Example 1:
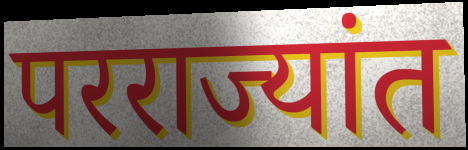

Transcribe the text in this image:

परराज्यांत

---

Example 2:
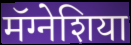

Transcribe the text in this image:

मॅग्‍नेशिया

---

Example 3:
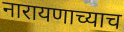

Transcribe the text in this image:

नारायणाच्याच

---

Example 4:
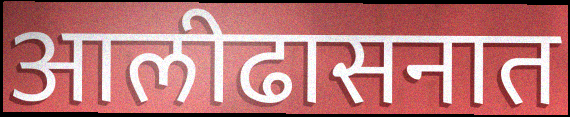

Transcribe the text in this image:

आलीढासनात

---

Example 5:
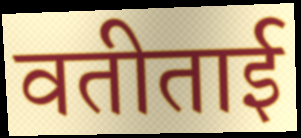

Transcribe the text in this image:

वतीताई